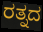
ರತ್ನದ